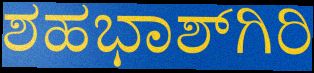
ಶಹಭಾಶ್‌ಗಿರಿ